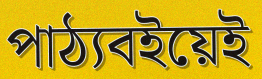
পাঠ্যবইয়েই